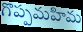
గొప్పమహిమ